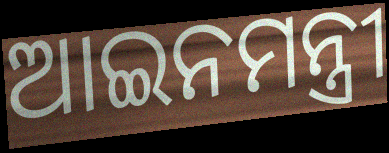
ଆଇନମନ୍ତ୍ରୀ